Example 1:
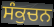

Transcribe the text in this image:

ਸੰਕੁਚਨ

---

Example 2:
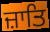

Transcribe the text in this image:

ਜ਼ਾਤਿ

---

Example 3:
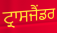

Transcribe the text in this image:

ਟ੍ਰਾਸਜੈਂਡਰ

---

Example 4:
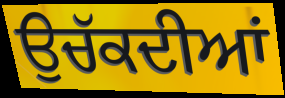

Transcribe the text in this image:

ਉਚੱਕਦੀਆਂ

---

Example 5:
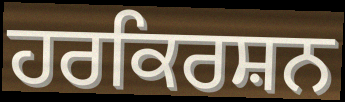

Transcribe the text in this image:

ਹਰਕਿਰਸ਼ਨ